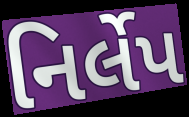
નિર્લેપ